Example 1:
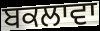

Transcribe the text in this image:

ਬਕਲਾਵਾ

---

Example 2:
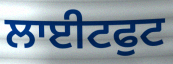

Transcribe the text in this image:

ਲਾਈਟਫੁਟ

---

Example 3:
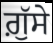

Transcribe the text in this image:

ਗ਼ੁੱਸੇ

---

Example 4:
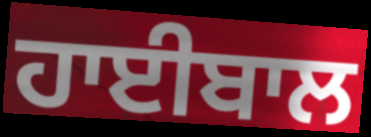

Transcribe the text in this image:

ਹਾਈਬਾਲ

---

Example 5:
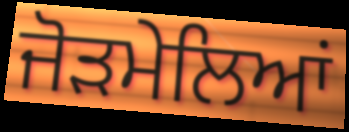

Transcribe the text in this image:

ਜੋੜਮੇਲਿਆਂ